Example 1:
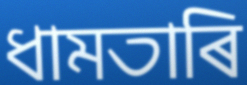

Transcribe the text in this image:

ধামতাৰি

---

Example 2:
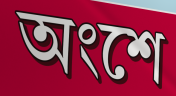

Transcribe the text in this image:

অংশে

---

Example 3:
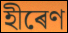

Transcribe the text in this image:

হীৰেণ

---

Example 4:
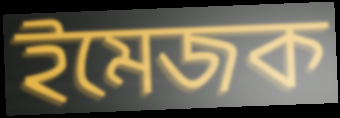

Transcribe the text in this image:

ইমেজক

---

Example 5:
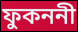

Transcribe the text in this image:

ফুকননী